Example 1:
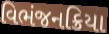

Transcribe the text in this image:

વિભંજનક્રિયા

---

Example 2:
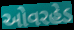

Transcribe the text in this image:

ઓવરહેડ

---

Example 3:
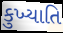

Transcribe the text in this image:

કુખ્યાતિ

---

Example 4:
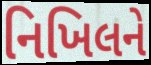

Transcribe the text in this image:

નિખિલને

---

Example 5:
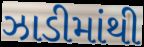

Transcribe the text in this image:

ઝાડીમાંથી